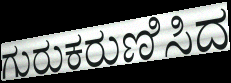
ಗುರುಕರುಣಿಸಿದ